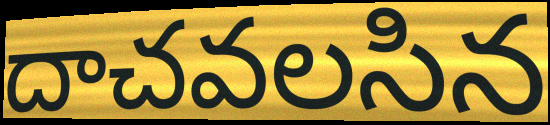
దాచవలసిన